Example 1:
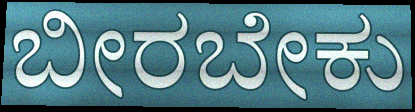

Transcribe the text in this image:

ಬೀರಬೇಕು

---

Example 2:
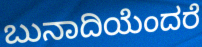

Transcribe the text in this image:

ಬುನಾದಿಯೆಂದರೆ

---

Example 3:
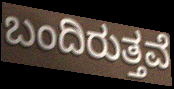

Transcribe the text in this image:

ಬಂದಿರುತ್ತವೆ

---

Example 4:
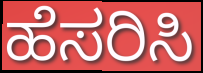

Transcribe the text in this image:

ಹೆಸರಿಸಿ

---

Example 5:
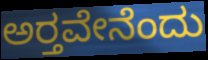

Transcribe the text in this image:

ಅರ‍್ತವೇನೆಂದು